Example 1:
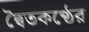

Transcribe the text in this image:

দ্বৈতকণ্ঠের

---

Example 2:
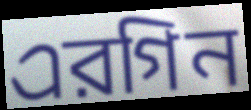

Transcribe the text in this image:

এরগিন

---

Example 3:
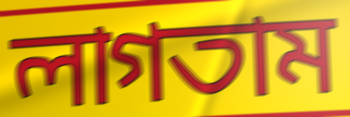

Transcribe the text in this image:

লাগতাম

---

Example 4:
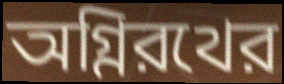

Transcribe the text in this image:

অগ্নিরথের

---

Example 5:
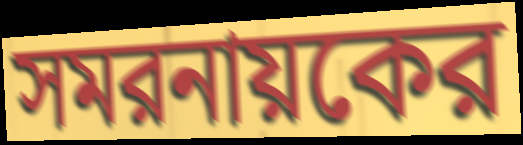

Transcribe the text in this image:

সমরনায়কের